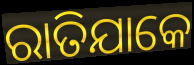
ରାତିଯାକେ